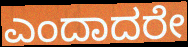
ಎಂದಾದರೇ